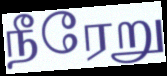
நீரேறு